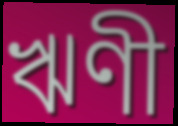
ঋণী